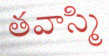
తవాస్మి